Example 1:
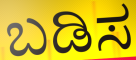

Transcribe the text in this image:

ಬಡಿಸ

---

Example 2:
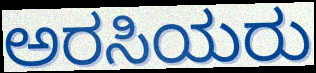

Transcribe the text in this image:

ಅರಸಿಯರು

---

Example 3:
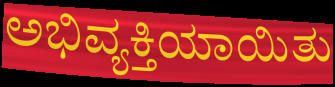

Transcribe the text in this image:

ಅಭಿವ್ಯಕ್ತಿಯಾಯಿತು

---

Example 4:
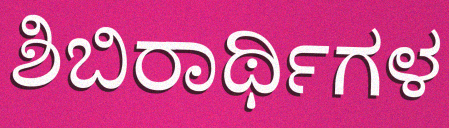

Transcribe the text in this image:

ಶಿಬಿರಾರ್ಥಿಗಳ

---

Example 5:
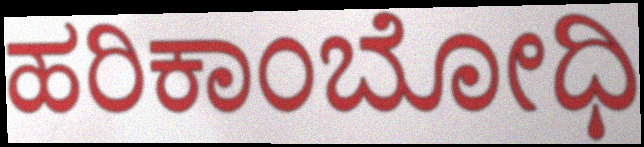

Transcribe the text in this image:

ಹರಿಕಾಂಬೋಧಿ